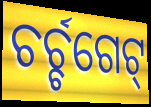
ଚର୍ଚ୍ଚଗେଟ୍